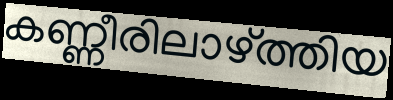
കണ്ണീരിലാഴ്ത്തിയ